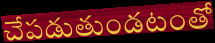
చేపడుతుండటంతో